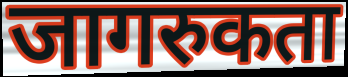
जागरुकता